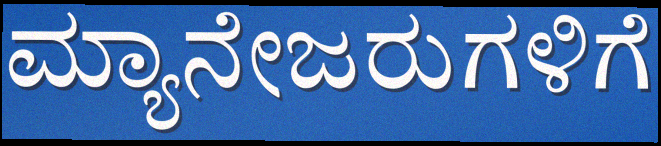
ಮ್ಯಾನೇಜರುಗಳಿಗೆ